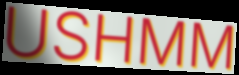
USHMM